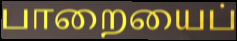
பாறையைப்